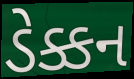
ડેક્કન